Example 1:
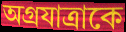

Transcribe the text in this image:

অগ্রযাত্রাকে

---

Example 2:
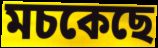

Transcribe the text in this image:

মচকেছে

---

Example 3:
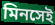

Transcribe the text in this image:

মিনসেই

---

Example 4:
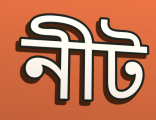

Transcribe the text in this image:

নীট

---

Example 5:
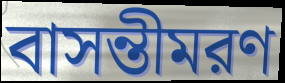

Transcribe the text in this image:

বাসন্তীমরণ